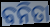
ବନିତା